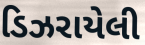
ડિઝરાયેલી